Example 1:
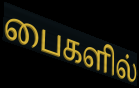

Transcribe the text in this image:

பைகளில்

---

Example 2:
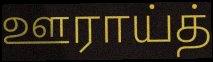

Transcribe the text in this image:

ஊராய்த்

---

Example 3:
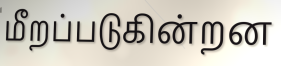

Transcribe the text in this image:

மீறப்படுகின்றன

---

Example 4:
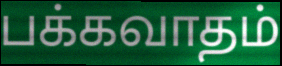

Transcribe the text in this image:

பக்கவாதம்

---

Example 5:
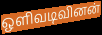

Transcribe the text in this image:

ஒளிவடிவினன்